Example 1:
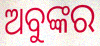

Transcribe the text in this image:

ଅବୁଙ୍କର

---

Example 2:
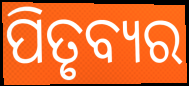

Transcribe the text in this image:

ପିତୃବ୍ୟର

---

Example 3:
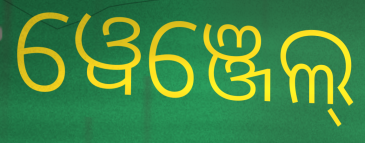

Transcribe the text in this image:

ୱେଞ୍ଜେଲ୍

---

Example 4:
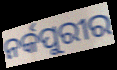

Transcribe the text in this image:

ନର୍କପୁରୀର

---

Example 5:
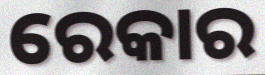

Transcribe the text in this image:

ରେକାର